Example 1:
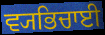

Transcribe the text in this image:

ਵ੍ਯਭਿਚਾਈ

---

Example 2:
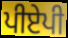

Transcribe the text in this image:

ਪੀਏਪੀ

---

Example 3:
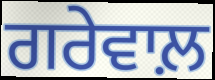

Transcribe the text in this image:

ਗਰੇਵਾਲ਼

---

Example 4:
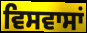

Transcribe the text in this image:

ਵਿਸਵਾਸਾਂ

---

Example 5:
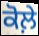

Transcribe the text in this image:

ਕੋਲ਼ੇ